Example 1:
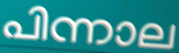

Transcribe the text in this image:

പിന്നാല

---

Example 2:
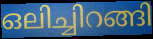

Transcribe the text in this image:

ഒലിച്ചിറങ്ങി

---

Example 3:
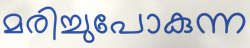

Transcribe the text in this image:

മരിച്ചുപോകുന്ന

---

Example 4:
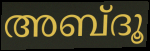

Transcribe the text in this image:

അബ്ദൂ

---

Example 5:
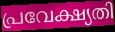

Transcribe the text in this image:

പ്രവേക്ഷ്യതി